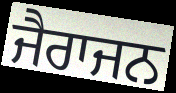
ਜੈਰਾਜਨ